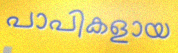
പാപികളായ